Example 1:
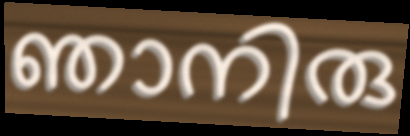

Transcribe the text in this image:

ഞാനിരു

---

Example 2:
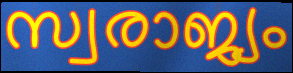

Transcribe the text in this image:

സ്വരാജ്യം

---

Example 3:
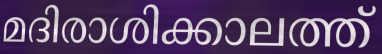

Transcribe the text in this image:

മദിരാശിക്കാലത്ത്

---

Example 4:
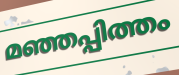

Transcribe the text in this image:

മഞ്ഞപ്പിത്തം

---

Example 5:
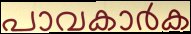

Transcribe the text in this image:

പാവകാർക